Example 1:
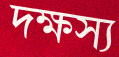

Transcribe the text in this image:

দক্ষস্য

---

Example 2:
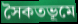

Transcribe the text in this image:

সৈকতভূমে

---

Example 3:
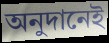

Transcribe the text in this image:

অনুদানেই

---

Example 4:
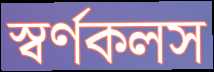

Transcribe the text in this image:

স্বর্ণকলস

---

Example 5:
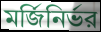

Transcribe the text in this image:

মর্জিনির্ভর